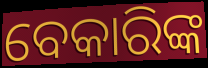
ବେକାରିଙ୍କ